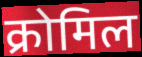
क्रोमिल